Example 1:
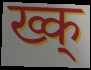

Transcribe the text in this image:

ख्क्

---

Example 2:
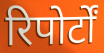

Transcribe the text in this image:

रिपोर्टों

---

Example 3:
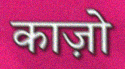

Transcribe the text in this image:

काज़ो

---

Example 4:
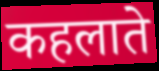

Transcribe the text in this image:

कहलाते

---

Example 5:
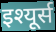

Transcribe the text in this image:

इश्यूर्स